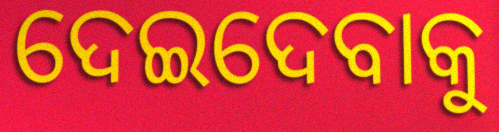
ଦେଇଦେବାକୁ